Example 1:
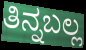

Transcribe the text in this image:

ತಿನ್ನಬಲ್ಲ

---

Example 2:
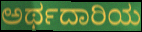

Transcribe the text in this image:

ಅರ್ಥದಾರಿಯ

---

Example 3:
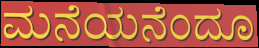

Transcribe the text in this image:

ಮನೆಯನೆಂದೂ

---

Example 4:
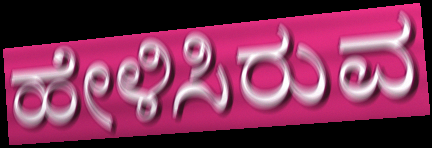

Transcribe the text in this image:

ಹೇಳಿಸಿರುವ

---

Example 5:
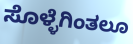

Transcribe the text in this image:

ಸೊಳ್ಳೆಗಿಂತಲೂ